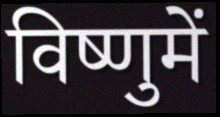
विष्णुमें